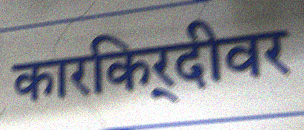
कारकिर्दीवर